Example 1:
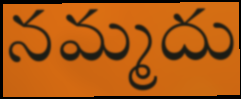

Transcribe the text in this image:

నమ్మదు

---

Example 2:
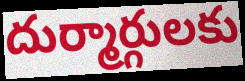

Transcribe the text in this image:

దుర్మార్గులకు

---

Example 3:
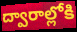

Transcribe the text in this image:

ద్వారాల్లోకి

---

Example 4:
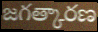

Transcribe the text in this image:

జగత్కారణ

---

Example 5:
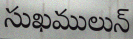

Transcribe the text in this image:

సుఖములున్